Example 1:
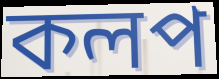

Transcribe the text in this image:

কলপ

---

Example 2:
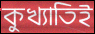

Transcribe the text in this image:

কুখ্যাতিই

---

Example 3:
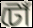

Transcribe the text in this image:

টোঁ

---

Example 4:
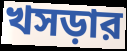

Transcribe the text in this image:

খসড়ার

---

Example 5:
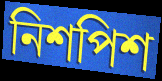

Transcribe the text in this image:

নিশপিশ